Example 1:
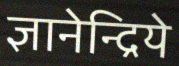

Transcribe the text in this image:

ज्ञानेन्द्रिये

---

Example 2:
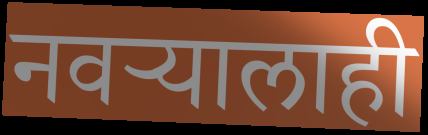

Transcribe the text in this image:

नवऱ्यालाही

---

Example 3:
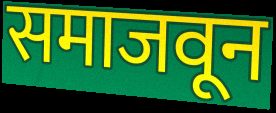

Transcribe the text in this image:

समाजवून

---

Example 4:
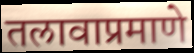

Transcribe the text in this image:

तलावाप्रमाणे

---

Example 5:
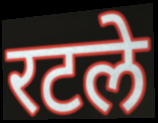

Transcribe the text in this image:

रटले